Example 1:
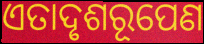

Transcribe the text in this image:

ଏତାଦୃଶରୂପେଣ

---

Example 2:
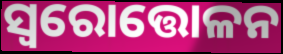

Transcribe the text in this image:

ସ୍ବରୋତ୍ତୋଳନ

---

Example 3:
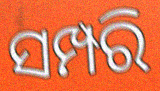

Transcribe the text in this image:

ସମ୍ପରି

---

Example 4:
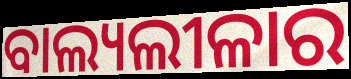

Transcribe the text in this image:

ବାଲ୍ୟଲୀଳାର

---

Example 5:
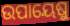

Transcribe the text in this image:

ଉପାୟେଷୁ